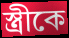
স্ত্রীকে